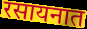
रसायनात